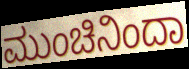
ಮುಂಚಿನಿಂದಾ